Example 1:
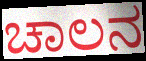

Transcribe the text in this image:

ಚಾಲನ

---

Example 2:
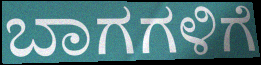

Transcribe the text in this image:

ಬಾಗಗಳಿಗೆ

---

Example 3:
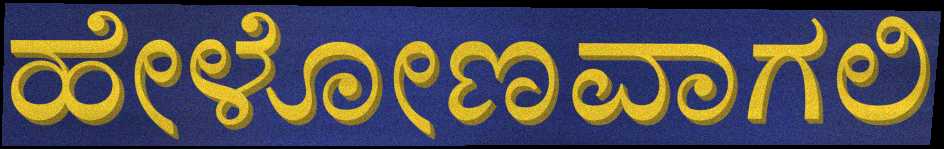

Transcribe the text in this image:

ಹೇಳೋಣವಾಗಲಿ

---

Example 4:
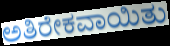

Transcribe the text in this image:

ಅತಿರೇಕವಾಯಿತು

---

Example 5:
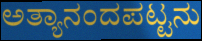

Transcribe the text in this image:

ಅತ್ಯಾನಂದಪಟ್ಟನು